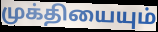
முக்தியையும்